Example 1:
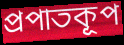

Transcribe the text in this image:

প্রপাতকূপ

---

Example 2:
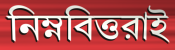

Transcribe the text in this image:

নিম্নবিত্তরাই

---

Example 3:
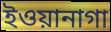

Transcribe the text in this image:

ইওয়ানাগা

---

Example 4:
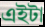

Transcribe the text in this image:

এইটা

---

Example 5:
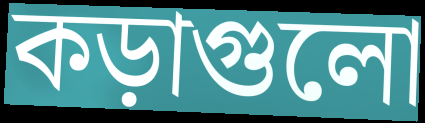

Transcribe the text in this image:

কড়াগুলো